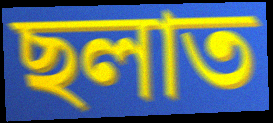
ছলাত